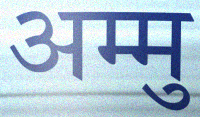
अम्मु